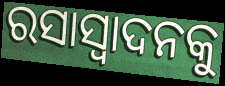
ରସାସ୍ୱାଦନକୁ